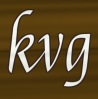
kvg